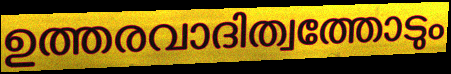
ഉത്തരവാദിത്വത്തോടും